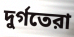
দুর্গতেরা